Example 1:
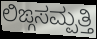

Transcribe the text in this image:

ಲಿಙ್ಗಸಮ್ಪತ್ತಿ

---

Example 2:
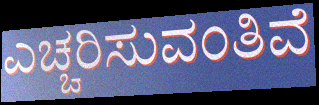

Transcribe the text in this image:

ಎಚ್ಚರಿಸುವಂತಿವೆ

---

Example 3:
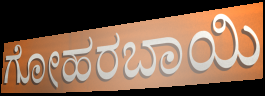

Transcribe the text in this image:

ಗೋಹರಬಾಯಿ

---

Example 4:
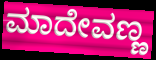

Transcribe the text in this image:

ಮಾದೇವಣ್ಣ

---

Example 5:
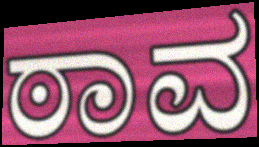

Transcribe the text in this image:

ಠಾವ